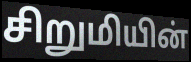
சிறுமியின்